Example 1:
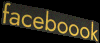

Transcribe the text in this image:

faceboook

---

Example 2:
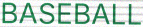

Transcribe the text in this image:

BASEBALL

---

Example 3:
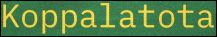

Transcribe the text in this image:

Koppalatota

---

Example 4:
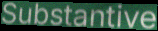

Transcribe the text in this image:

Substantive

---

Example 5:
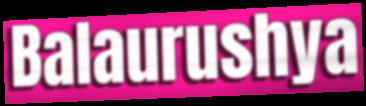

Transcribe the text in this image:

Balaurushya